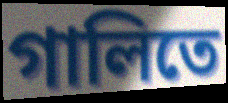
গালিতে